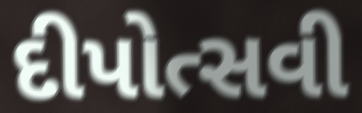
દીપોત્સવી